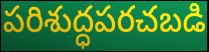
పరిశుద్ధపరచబడి